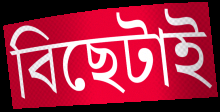
বিছেটাই